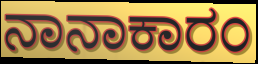
ನಾನಾಕಾರಂ